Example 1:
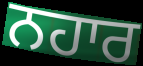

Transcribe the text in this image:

ਨਹਾਰ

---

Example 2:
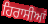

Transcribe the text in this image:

ਹਿਰਾਸੀਆਂ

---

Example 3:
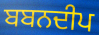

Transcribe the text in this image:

ਬਬਨਦੀਪ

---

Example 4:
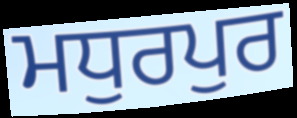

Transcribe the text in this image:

ਮਧੁਰਪੁਰ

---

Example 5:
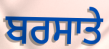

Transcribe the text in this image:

ਬਰਸਾਤੇ